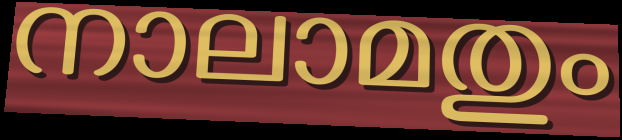
നാലാമതും